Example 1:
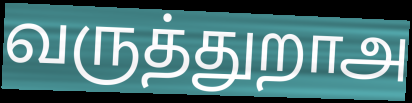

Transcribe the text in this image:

வருத்துறாஅ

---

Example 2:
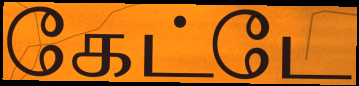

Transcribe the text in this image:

கேட்டே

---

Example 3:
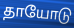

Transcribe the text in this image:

தாயோடு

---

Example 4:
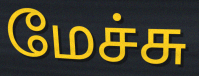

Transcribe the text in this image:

மேச்சு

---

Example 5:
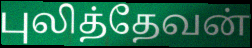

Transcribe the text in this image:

புலித்தேவன்